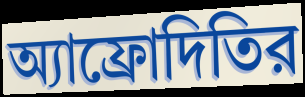
অ্যাফ্রোদিতির